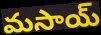
మసాయ్